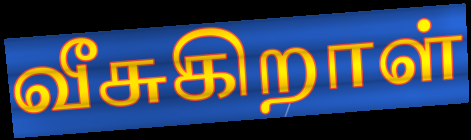
வீசுகிறாள்